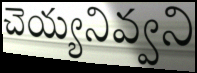
చెయ్యనివ్వని